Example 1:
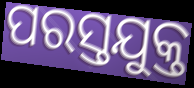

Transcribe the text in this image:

ପରସ୍ତଯୁକ୍ତ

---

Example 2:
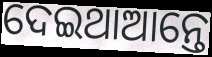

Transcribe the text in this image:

ଦେଇଥାଆନ୍ତେ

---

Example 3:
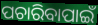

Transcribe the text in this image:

ପଚାରିବାପାଇଁ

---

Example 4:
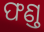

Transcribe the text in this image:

ଫଣ୍ଡ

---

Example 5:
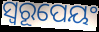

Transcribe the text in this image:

ସ୍ୱରୂପେୟଂ